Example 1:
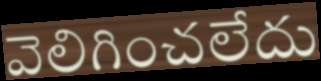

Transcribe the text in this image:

వెలిగించలేదు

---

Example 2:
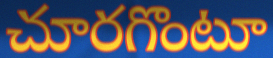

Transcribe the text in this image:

చూరగొంటూ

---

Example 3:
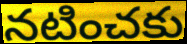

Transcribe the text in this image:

నటించకు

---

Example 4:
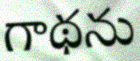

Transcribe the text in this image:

గాథను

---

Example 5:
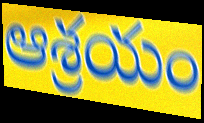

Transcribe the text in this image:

ఆశ్రయం